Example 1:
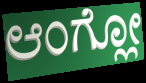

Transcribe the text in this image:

ಆಂಗ್ಲೋ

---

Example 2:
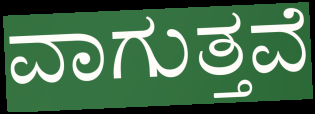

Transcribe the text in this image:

ವಾಗುತ್ತವೆ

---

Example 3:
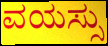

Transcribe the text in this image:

ವಯಸ್ಸು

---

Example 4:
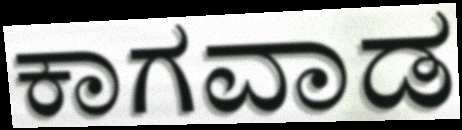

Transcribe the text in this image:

ಕಾಗವಾಡ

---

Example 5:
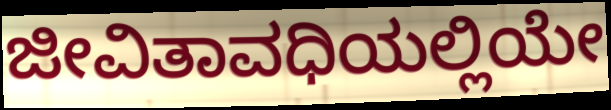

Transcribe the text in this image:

ಜೀವಿತಾವಧಿಯಲ್ಲಿಯೇ